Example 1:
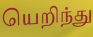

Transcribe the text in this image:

யெறிந்து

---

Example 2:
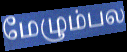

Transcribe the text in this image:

மேழும்பல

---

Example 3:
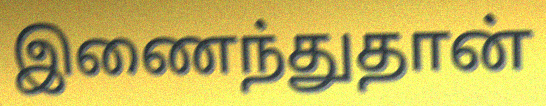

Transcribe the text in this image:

இணைந்துதான்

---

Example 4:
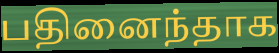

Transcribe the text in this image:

பதினைந்தாக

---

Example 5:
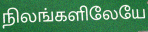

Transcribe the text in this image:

நிலங்களிலேயே